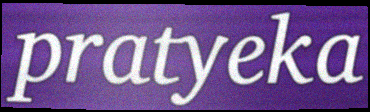
pratyeka